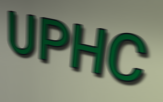
UPHC